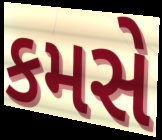
કમસે